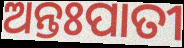
ଅନ୍ତଃପାତୀ